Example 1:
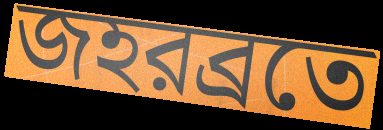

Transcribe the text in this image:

জহরব্রতে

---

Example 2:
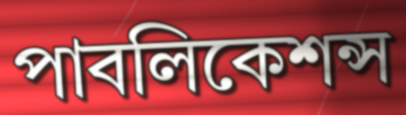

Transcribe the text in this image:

পাবলিকেশন্স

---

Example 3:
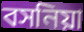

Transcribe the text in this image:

বসনিয়া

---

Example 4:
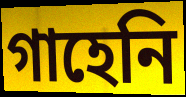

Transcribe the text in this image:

গাহেনি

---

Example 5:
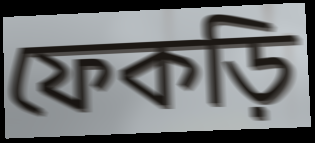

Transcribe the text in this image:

ফেকড়ি